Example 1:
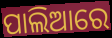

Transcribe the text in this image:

ପାଲିଆରେ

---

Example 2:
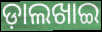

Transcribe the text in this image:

ଡ଼ାଲଖାଇ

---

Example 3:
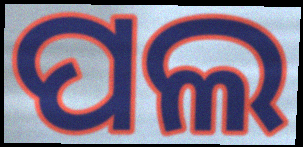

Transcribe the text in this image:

ପଲ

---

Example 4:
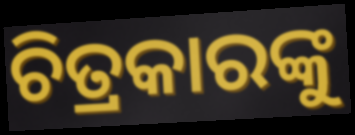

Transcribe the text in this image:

ଚିତ୍ରକାରଙ୍କୁ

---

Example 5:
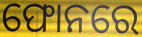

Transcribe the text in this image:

ଫୋନରେ